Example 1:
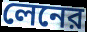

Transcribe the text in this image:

লেনের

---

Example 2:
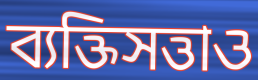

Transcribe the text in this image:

ব্যক্তিসত্তাও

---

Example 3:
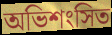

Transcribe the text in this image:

অভিশংসিত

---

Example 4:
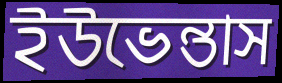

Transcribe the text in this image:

ইউভেন্তাস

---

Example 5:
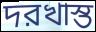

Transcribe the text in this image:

দরখাস্ত